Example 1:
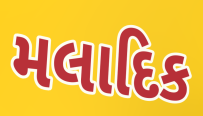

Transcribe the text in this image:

મલાદિક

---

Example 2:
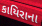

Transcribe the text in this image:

કાયિરાના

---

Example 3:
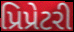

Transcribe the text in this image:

પ્રિપ્રેટરી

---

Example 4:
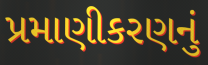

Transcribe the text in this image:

પ્રમાણીકરણનું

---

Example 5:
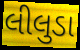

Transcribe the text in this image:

લીલુડા